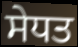
ਸੇਧਤ